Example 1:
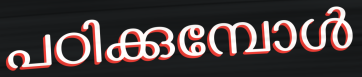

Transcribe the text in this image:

പഠിക്കുമ്പോൾ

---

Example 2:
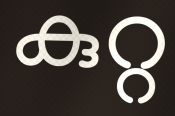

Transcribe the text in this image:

കുറ്റ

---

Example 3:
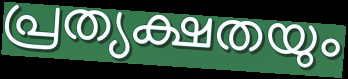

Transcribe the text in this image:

പ്രത്യക്ഷതയും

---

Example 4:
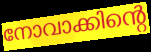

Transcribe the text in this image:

നോവാക്കിന്റെ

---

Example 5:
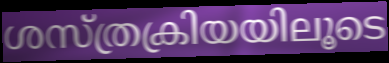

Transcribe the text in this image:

ശസ്ത്രക്രിയയിലൂടെ